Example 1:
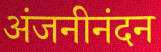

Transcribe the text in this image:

अंजनीनंदन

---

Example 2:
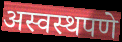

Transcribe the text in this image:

अस्वस्थपणे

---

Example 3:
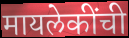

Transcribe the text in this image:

मायलेकींची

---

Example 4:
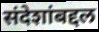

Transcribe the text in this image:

संदेशांबद्दल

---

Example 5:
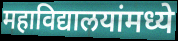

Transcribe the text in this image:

महाविद्यालयांमध्ये